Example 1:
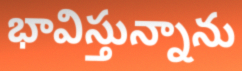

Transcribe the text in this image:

భావిస్తున్నాను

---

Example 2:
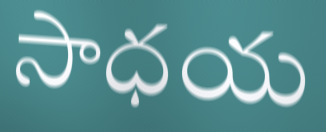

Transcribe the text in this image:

సాధయ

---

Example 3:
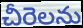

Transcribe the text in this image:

చీరెలను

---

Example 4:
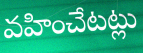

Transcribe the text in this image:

వహించేటట్లు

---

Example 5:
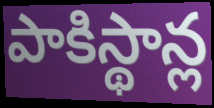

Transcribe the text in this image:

పాకిస్థాన్ల